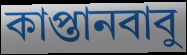
কাপ্তানবাবু